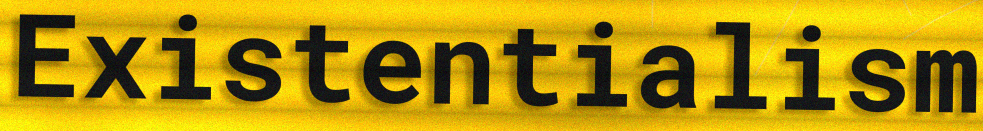
Existentialism